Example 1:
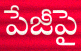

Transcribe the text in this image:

పేజీపై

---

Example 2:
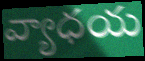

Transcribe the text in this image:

వ్యాధయ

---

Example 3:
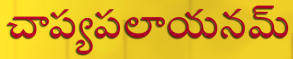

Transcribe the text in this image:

చాప్యపలాయనమ్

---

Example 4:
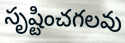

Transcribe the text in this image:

సృష్టించగలవు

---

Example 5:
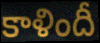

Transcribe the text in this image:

కాళిందీ